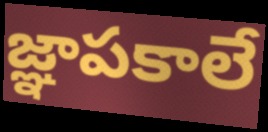
జ్ఞాపకాలే